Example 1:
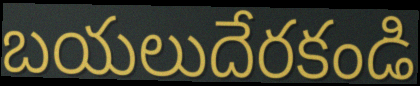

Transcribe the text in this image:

బయలుదేరకండి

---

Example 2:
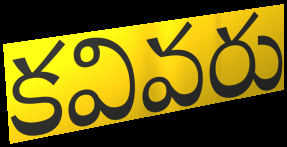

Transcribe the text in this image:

కవివరు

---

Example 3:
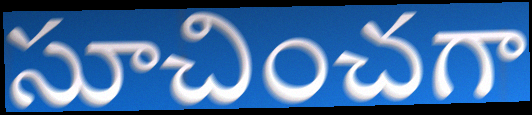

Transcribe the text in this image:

సూచించగా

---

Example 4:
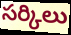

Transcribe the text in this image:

సర్కిలు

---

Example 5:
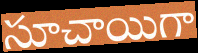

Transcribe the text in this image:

సూచాయిగా